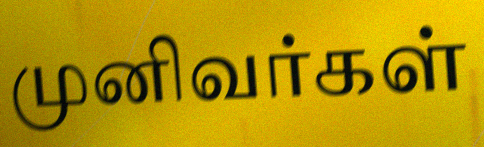
முனிவர்கள்